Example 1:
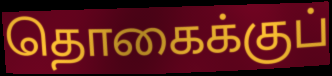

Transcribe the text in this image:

தொகைக்குப்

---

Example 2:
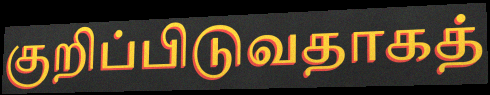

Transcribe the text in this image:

குறிப்பிடுவதாகத்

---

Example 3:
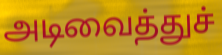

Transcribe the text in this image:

அடிவைத்துச்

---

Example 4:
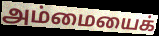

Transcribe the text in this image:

அம்மையைக்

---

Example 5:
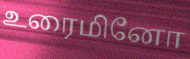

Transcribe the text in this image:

உரைமினோ